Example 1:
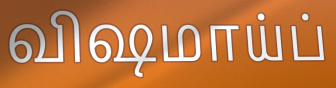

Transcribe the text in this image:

விஷமாய்ப்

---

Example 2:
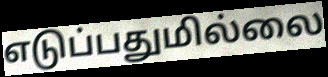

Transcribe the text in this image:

எடுப்பதுமில்லை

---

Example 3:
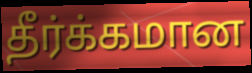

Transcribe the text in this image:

தீர்க்கமான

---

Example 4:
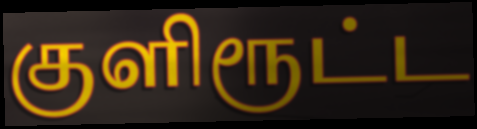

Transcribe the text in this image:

குளிரூட்ட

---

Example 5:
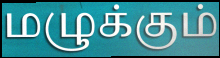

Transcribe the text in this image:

மழுக்கும்